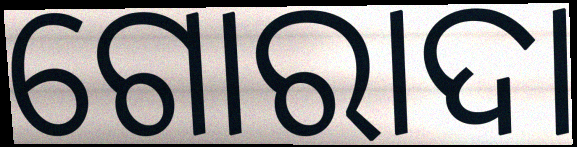
ଗୋରାଦା